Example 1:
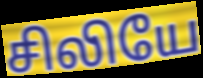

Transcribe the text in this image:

சிலியே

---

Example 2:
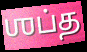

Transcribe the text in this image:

ஶப்த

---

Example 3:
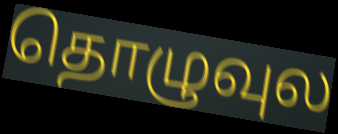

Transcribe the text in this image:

தொழுவுல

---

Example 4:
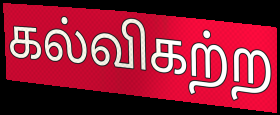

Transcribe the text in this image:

கல்விகற்ற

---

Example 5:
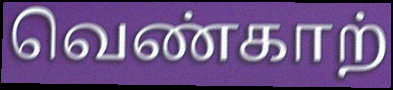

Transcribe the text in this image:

வெண்காற்